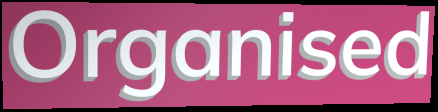
Organised